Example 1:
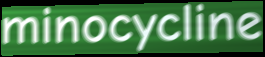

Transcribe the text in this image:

minocycline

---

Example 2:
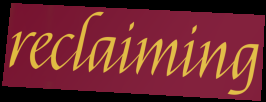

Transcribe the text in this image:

reclaiming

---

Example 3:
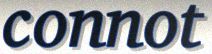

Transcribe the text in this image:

connot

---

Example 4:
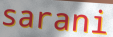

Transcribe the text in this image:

sarani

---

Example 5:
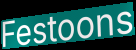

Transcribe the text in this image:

Festoons